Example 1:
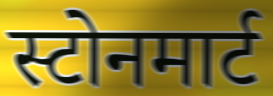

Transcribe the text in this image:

स्टोनमार्ट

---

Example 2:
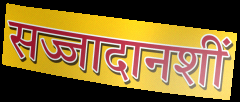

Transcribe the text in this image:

सज्जादानशीं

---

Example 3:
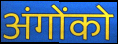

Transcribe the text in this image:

अंगोंको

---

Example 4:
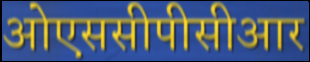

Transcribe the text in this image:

ओएससीपीसीआर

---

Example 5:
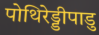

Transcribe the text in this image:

पोथिरेड्डीपाडु